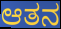
ಆತನ